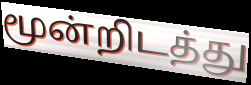
மூன்றிடத்து